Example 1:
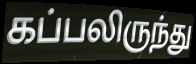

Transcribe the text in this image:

கப்பலிருந்து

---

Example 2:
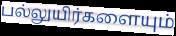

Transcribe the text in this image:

பல்லுயிர்களையும்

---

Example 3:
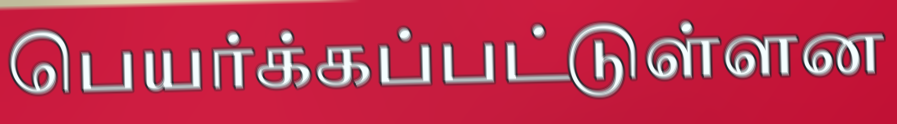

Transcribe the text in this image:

பெயர்க்கப்பட்டுள்ளன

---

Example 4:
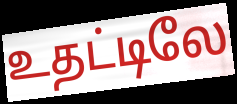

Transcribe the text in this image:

உதட்டிலே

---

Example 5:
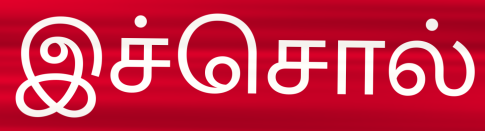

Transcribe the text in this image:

இச்சொல்